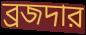
ব্রজদার